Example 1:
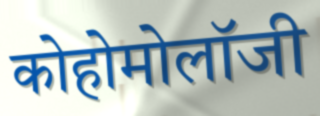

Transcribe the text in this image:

कोहोमोलॉजी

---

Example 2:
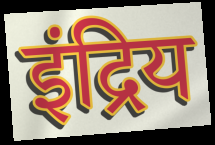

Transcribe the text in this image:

इंद्रिय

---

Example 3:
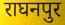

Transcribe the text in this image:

राघनपुर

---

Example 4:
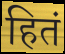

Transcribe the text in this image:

हितं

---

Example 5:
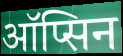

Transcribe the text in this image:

ऑप्सिन